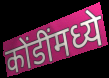
कोंडींमध्ये